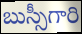
బుస్సీగారి